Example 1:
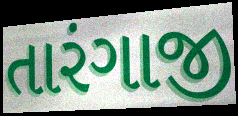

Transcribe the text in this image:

તારંગાજી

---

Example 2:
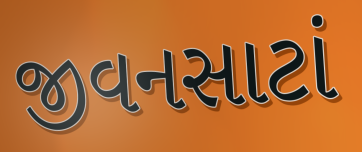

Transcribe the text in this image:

જીવનસાટાં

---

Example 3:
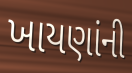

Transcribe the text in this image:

ખાયણાંની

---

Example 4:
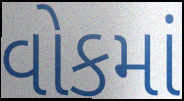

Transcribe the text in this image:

વોકમાં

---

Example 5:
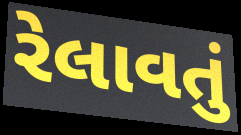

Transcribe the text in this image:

રેલાવતું